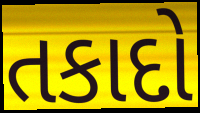
તકાદો